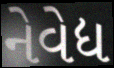
નેવેદ્ય